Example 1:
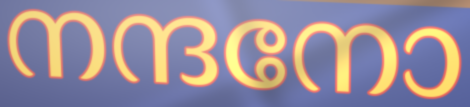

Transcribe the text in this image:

നന്ദനോ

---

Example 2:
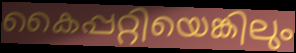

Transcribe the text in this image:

കൈപ്പറ്റിയെങ്കിലും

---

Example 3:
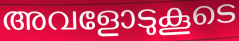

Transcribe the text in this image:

അവളോടുകൂടെ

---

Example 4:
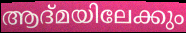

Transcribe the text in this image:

ആദ്മയിലേക്കും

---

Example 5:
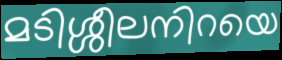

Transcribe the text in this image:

മടിശ്ശീലനിറയെ